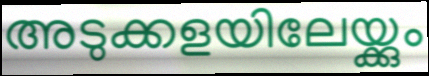
അടുക്കളയിലേയ്ക്കും